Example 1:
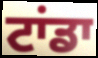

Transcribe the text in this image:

ਟਾਂਡਾ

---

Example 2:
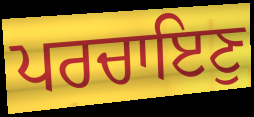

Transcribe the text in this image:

ਪਰਚਾਇਣੁ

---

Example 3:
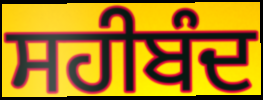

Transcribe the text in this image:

ਸਹੀਬੰਦ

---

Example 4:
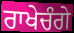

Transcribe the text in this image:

ਰਾਖੇਚੰਗੇ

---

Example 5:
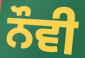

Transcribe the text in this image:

ਨੌਵੀ